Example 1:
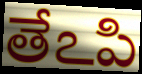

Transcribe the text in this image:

తేఽపి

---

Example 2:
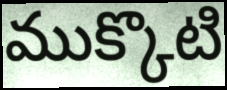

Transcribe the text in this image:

ముక్కొటి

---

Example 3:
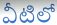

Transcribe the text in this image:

వీటిలో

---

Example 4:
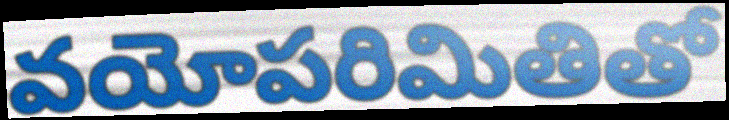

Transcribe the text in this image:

వయోపరిమితితో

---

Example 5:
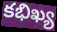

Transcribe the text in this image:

కభిఖ్య